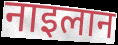
नाइलान